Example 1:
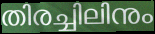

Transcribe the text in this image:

തിരച്ചിലിനും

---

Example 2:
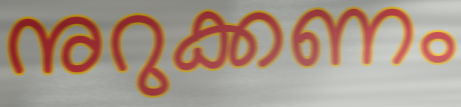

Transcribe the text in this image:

നുറുക്കണം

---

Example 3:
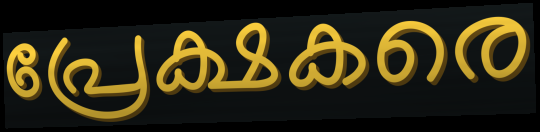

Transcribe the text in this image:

പ്രേക്ഷകരെ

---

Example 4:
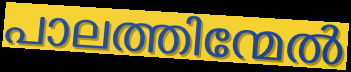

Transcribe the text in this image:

പാലത്തിന്മേൽ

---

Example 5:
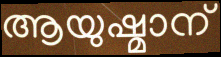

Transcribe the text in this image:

ആയുഷ്മാന്